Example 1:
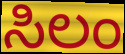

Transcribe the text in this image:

ಸಿಲಂ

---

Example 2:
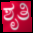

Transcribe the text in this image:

ಶೃತಿ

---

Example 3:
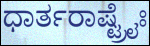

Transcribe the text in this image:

ಧಾರ್ತರಾಷ್ಟ್ರೈಃ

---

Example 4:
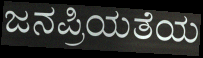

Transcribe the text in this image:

ಜನಪ್ರಿಯತೆಯ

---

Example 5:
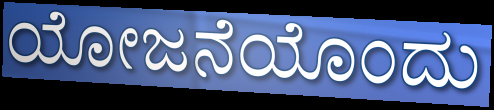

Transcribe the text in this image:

ಯೋಜನೆಯೊಂದು